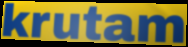
krutam